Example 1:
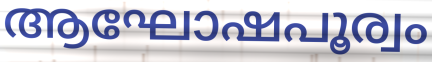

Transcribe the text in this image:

ആഘോഷപൂര്വം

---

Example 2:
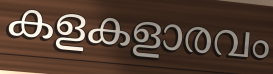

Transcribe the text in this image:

കളകളാരവം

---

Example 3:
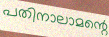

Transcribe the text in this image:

പതിനാലാമന്റെ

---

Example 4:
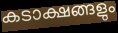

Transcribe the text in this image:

കടാക്ഷങ്ങളും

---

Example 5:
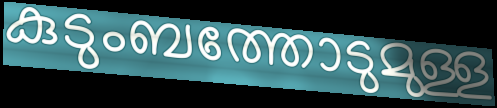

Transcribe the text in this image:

കുടുംബത്തോടുമുള്ള